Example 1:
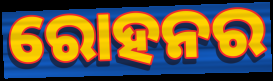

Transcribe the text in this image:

ରୋହନର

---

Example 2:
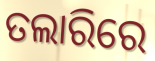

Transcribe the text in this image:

ତଲାରିରେ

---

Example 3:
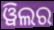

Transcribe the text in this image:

ୱିଲର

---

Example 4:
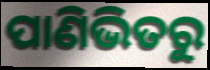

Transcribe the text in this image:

ପାଣିଭିତରୁ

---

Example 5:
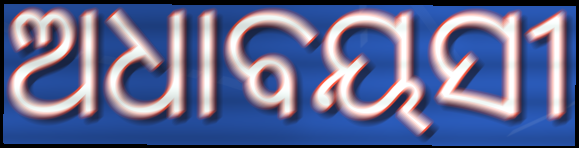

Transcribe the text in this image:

ଅଧାବୟସୀ